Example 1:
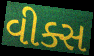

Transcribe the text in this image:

વીક્સ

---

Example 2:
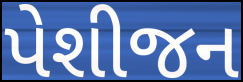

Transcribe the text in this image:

પેશીજન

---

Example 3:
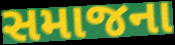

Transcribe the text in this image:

સમાજના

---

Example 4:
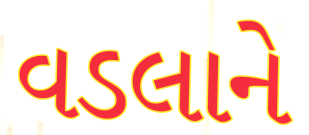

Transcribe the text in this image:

વડલાને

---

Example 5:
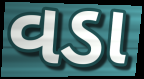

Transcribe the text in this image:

વડા